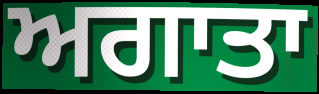
ਅਗਾਤਾ